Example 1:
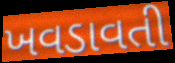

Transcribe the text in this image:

ખવડાવતી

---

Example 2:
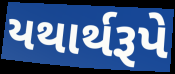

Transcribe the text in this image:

યથાર્થરૂપે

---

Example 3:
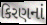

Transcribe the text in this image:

કિરણનાં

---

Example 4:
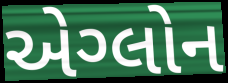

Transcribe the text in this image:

એગ્લોન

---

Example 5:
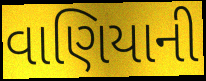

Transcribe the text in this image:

વાણિયાની